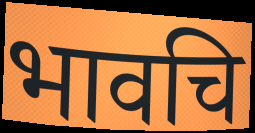
भावचि